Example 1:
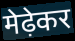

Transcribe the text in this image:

मेढ़ेकर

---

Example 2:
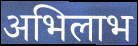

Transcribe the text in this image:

अभिलाभ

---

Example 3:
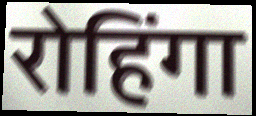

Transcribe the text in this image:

रोहिंगा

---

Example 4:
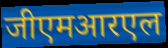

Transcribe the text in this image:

जीएमआरएल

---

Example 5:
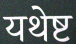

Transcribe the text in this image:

यथेष्ट